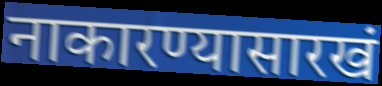
नाकारण्यासारखं